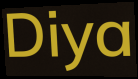
Diya